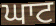
ਘਾਟ